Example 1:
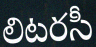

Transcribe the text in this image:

లిటరసీ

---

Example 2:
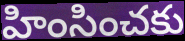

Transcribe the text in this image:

హింసించకు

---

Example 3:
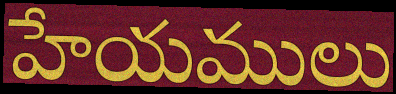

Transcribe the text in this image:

హేయములు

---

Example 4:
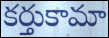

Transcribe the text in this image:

కర్తుకామా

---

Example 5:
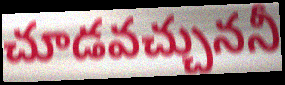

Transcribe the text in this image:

చూడవచ్చుననీ